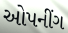
ઓપનીંગ